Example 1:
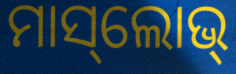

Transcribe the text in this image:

ମାସ୍‌ଲୋଭ୍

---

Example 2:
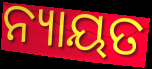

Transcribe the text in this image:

ନ୍ୟାୟତ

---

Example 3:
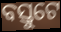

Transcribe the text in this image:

ବସ୍ତୁଟେ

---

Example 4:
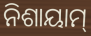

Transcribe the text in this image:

ନିଶାୟାମ୍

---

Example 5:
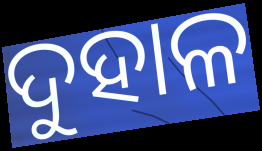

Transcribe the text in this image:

ଦୁହାଳ